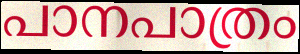
പാനപാത്രം